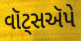
વૉટ્સઍપે